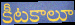
కీటకాలూ